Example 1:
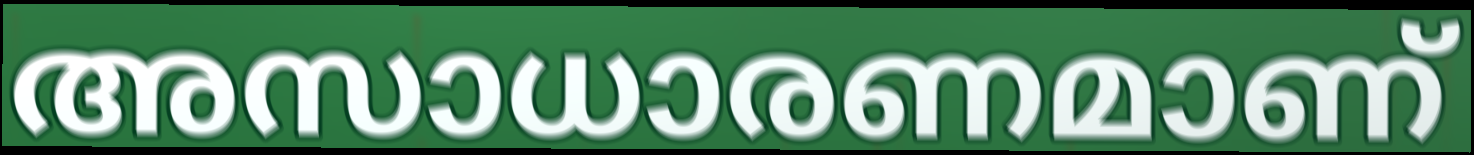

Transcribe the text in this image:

അസാധാരണമാണ്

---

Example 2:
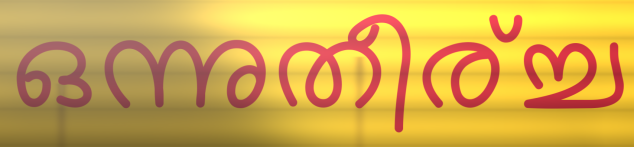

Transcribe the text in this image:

ഒന്നുതീര്ച്ച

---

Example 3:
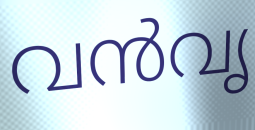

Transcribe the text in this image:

വൻവൃ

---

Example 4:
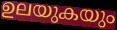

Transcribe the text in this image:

ഉലയുകയും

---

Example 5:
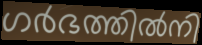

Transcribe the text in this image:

ഗർഭത്തിൽനി